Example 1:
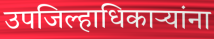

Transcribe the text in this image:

उपजिल्हाधिकाऱ्यांना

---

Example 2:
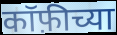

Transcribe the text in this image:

कॉफ़ीच्या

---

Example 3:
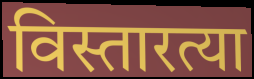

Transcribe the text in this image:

विस्तारत्या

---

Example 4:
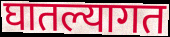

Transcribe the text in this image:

घातल्यागत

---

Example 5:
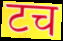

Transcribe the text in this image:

टच